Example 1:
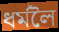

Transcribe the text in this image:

ধৰ্মলৈ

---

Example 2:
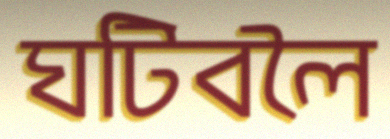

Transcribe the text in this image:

ঘটিবলৈ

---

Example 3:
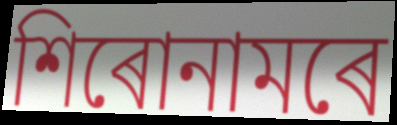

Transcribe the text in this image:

শিৰোনামৰে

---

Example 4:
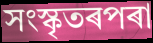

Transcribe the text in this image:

সংস্কৃতৰপৰা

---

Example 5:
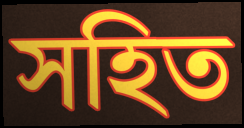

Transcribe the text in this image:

সহিত